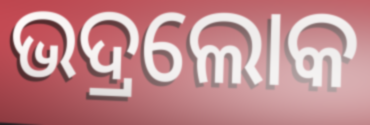
ଭଦ୍ରଲୋକ